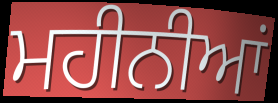
ਮਹੀਨੀਆਂ